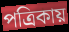
পত্রিকায়